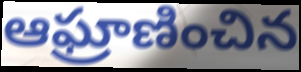
ఆఘ్రాణించిన